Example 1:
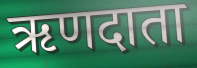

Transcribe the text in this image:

ऋणदाता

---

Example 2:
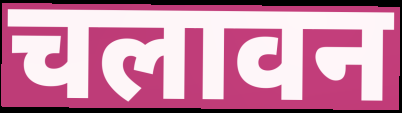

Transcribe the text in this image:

चलावन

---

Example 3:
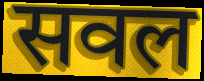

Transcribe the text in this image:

सवल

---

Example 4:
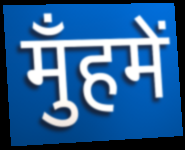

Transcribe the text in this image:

मुँहमें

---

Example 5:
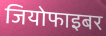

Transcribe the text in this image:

जियोफाइबर